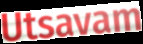
Utsavam